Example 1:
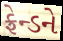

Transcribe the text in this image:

ફ્રેન્ડને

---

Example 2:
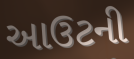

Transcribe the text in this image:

આઉટની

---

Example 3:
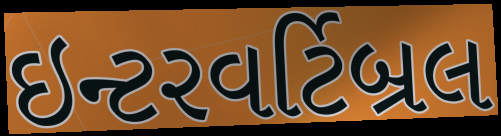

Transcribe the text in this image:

ઇન્ટરવર્ટિબ્રલ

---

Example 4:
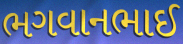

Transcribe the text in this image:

ભગવાનભાઈ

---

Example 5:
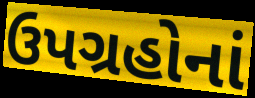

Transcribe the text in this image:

ઉપગ્રહોનાં